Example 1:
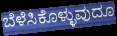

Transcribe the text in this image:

ಬೆಳೆಸಿಕೊಳ್ಳುವುದೂ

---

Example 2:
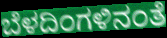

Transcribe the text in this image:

ಬೆಳದಿಂಗಳಿನಂತೆ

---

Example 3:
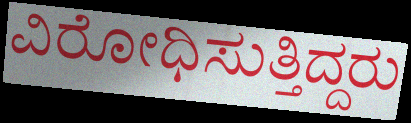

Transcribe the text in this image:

ವಿರೋಧಿಸುತ್ತಿದ್ದರು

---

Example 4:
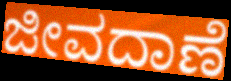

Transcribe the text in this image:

ಜೀವದಾಣೆ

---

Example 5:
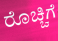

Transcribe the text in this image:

ರೊಚ್ಚಿಗೆ